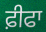
ਫ਼ੀਫਾ